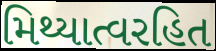
મિથ્યાત્વરહિત